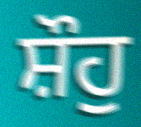
ਸ਼ੌਹੁ